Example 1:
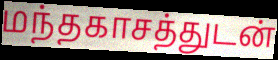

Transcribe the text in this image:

மந்தகாசத்துடன்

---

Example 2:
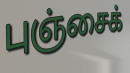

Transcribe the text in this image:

புஞ்சைக்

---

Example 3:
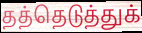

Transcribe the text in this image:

தத்தெடுத்துக்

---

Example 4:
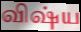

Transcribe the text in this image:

விஷ்ய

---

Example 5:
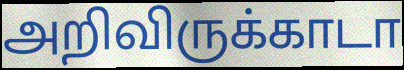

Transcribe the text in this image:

அறிவிருக்காடா